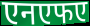
एनएफए